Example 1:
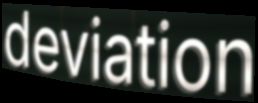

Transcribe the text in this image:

deviation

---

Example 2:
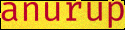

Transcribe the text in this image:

anurup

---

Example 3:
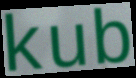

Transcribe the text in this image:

kub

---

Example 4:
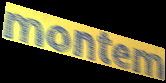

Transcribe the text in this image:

montem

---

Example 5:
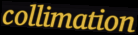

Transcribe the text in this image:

collimation